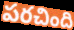
పరచింది